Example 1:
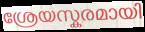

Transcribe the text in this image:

ശ്രേയസ്കരമായി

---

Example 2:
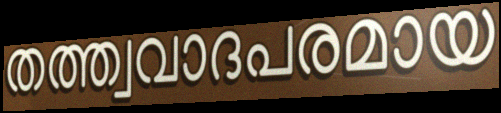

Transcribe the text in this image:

തത്ത്വവാദപരമായ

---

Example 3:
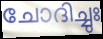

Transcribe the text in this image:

ചോദിച്ചുഃ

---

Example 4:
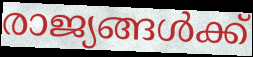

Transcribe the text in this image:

രാജ്യങ്ങൾക്ക്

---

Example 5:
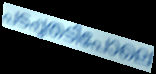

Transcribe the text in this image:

പടപ്പുതടിപോലെ